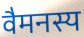
वैमनस्य